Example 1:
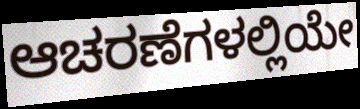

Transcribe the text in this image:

ಆಚರಣೆಗಳಲ್ಲಿಯೇ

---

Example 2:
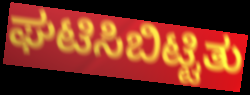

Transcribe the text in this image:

ಘಟಿಸಿಬಿಟ್ಟಿತು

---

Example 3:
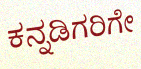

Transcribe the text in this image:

ಕನ್ನಡಿಗರಿಗೇ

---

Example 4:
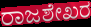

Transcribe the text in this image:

ರಾಜಶೇಖರ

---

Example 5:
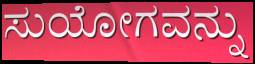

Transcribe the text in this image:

ಸುಯೋಗವನ್ನು